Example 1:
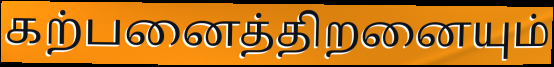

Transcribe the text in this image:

கற்பனைத்திறனையும்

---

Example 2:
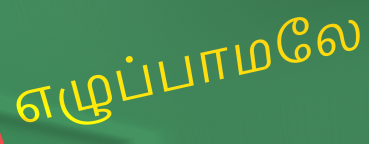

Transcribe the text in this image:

எழுப்பாமலே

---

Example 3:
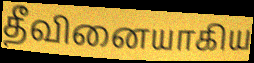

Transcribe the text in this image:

தீவினையாகிய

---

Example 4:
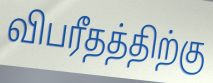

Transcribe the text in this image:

விபரீதத்திற்கு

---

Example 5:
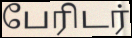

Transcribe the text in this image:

பேரிடர்